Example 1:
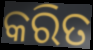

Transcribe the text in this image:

କରିତ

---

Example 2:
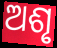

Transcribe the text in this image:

ଅଶୃ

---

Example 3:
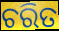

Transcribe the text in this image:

ଚରିତ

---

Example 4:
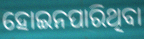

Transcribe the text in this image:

ହୋଇନପାରିଥିବା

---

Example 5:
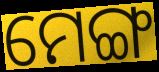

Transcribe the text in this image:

ମେଙ୍ଗ